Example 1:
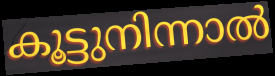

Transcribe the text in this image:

കൂട്ടുനിന്നാൽ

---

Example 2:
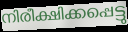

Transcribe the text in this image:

നിരീക്ഷിക്കപ്പെട്ടു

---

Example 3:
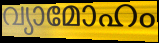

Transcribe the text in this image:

വ്യാമോഹം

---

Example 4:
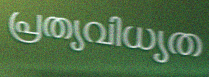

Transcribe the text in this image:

പ്രത്യവിധ്യത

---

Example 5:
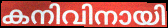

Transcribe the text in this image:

കനിവിനായി